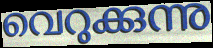
വെറുക്കുന്നു